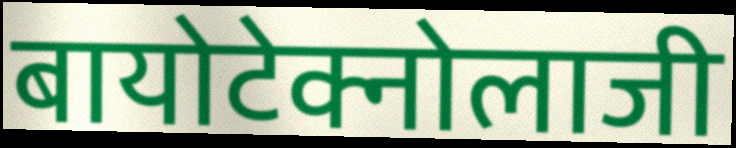
बायोटेक्नोलाजी